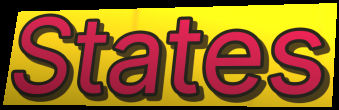
States